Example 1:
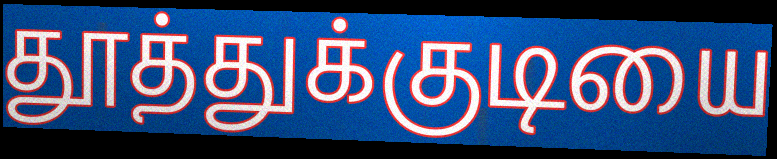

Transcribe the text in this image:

தூத்துக்குடியை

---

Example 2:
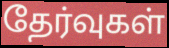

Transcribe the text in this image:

தேர்வுகள்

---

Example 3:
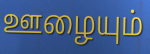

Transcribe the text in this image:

ஊழையும்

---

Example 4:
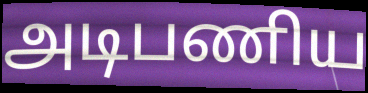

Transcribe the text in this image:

அடிபணிய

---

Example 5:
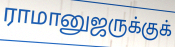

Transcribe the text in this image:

ராமானுஜருக்குக்